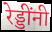
रेड्डींनी